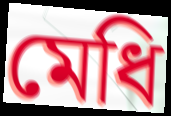
মেধি